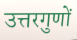
उत्तरगुणों